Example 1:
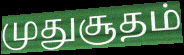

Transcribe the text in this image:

முதுசூதம்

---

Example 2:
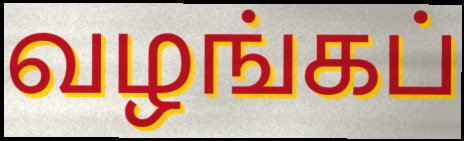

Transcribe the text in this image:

வழங்கப்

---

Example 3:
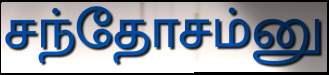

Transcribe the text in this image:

சந்தோசம்னு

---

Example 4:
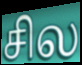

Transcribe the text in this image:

சில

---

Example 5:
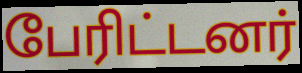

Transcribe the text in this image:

பேரிட்டனர்